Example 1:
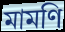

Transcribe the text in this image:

মামণি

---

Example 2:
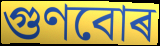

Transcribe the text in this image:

গুণবোৰ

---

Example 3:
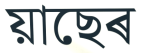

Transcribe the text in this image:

য়াছেৰ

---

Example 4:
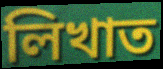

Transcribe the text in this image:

লিখাত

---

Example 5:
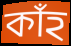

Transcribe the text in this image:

কাঁহ